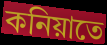
কনিয়াতে